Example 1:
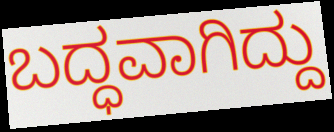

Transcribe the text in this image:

ಬದ್ಧವಾಗಿದ್ದು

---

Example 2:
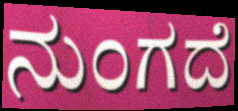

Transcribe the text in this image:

ನುಂಗದೆ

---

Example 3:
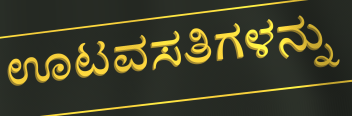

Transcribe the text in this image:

ಊಟವಸತಿಗಳನ್ನು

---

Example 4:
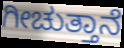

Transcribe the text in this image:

ಗೀಚುತ್ತಾನೆ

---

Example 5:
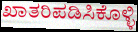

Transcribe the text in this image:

ಖಾತರಿಪಡಿಸಿಕೊಳ್ಳಿ